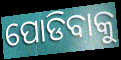
ପୋଡିବାକୁ